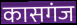
कासगंज